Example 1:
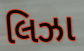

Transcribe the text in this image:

લિઝા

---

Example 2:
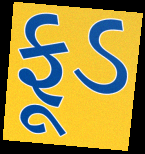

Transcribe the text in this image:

ફૂડ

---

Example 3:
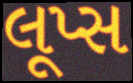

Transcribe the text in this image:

લૂપ્સ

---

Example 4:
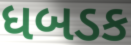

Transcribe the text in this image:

ધબડક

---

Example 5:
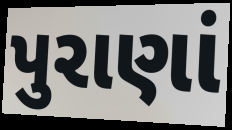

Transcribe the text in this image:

પુરાણાં